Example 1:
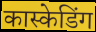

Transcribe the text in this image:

कास्केडिंग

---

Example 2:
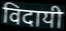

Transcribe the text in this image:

विदायी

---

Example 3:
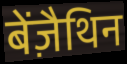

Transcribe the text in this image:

बेंज़ैथिन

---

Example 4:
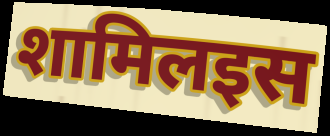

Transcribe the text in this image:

शामिलइस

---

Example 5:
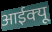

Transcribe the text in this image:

आईक्‍यू